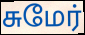
சுமேர்